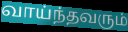
வாய்ந்தவரும்